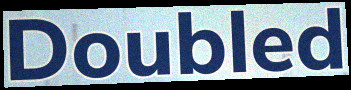
Doubled